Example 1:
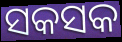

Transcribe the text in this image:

ସକସକ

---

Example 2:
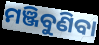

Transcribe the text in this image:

ମଞ୍ଜିବୁଣିବା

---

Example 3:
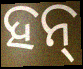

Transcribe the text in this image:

ହନ୍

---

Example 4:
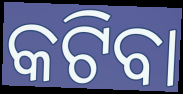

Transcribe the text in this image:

କଟିବା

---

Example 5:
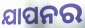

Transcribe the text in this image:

ଯାପନର